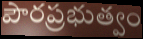
పౌరప్రభుత్వం